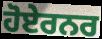
ਹੋਏਰਨਰ